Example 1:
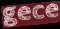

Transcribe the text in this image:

gece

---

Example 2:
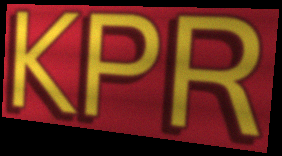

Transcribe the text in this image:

KPR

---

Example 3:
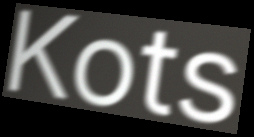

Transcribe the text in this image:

Kots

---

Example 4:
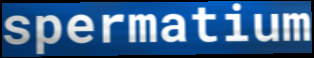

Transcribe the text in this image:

spermatium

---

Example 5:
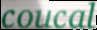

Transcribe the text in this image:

coucal